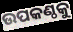
ଉପକଣ୍ଠକୁ